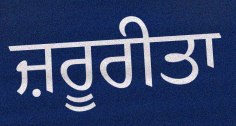
ਜ਼ਰੂਰੀਤਾ